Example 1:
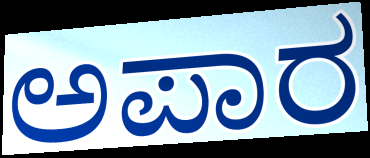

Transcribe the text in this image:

ಅಪಾರ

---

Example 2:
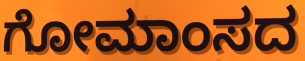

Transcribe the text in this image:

ಗೋಮಾಂಸದ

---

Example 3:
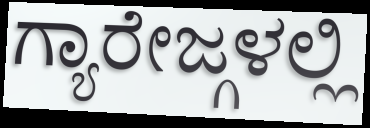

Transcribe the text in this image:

ಗ್ಯಾರೇಜ್ಗಳಲ್ಲಿ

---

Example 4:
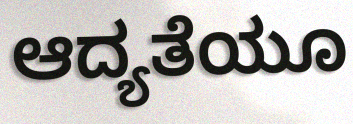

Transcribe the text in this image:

ಆದ್ಯತೆಯೂ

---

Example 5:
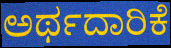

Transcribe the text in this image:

ಅರ್ಥದಾರಿಕೆ